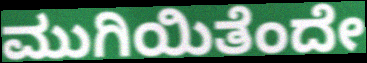
ಮುಗಿಯಿತೆಂದೇ